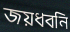
জয়ধবনি